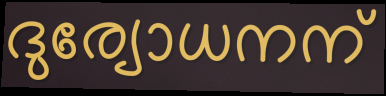
ദുര്യോധനന്